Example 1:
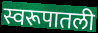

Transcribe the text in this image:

स्वरूपातली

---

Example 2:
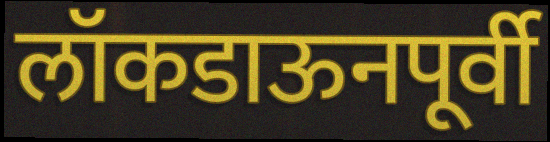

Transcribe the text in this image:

लॉकडाऊनपूर्वी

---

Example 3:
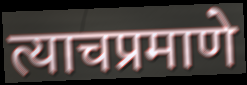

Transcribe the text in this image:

त्याचप्रमाणे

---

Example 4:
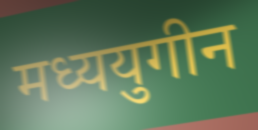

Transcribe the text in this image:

मध्ययुगीन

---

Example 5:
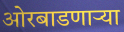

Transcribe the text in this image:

ओरबाडणाऱ्या